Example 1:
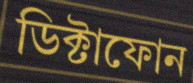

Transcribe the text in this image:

ডিক্টাফোন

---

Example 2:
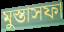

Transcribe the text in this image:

মুস্তাসফা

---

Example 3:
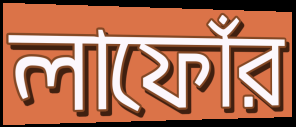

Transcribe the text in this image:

লাফোঁর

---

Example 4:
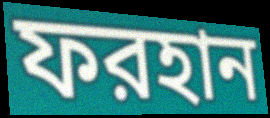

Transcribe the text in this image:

ফরহান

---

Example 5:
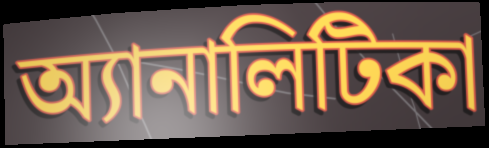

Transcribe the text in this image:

অ্যানালিটিকা